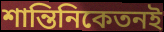
শান্তিনিকেতনই